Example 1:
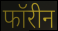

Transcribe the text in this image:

फॉरीन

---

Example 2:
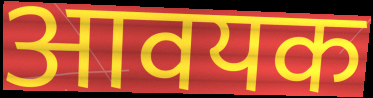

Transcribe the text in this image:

आवयक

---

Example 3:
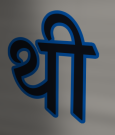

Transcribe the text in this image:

थी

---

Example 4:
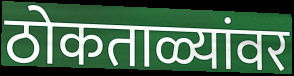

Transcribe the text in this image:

ठोकताळ्यांवर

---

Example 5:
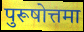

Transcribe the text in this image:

पुरूषोत्तमा